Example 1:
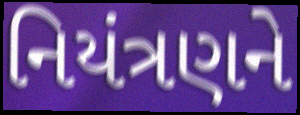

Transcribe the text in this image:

નિયંત્રણને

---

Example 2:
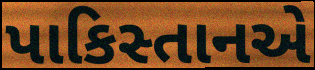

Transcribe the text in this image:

પાકિસ્તાનએ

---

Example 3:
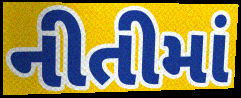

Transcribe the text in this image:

નીતીમાં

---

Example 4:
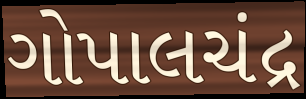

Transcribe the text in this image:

ગોપાલચંદ્ર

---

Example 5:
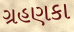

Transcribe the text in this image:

ગ્રહણકા